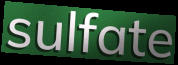
sulfate